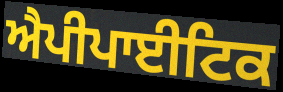
ਐਪੀਪਾਈਟਿਕ